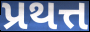
પ્રથત્ત